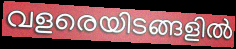
വളരെയിടങ്ങളിൽ